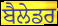
ਬੈਲੇਡਰ